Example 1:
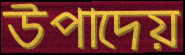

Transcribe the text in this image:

উপাদেয়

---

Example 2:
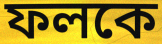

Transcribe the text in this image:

ফলকে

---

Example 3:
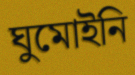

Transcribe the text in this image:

ঘুমোইনি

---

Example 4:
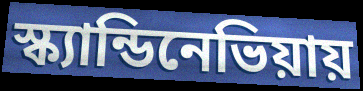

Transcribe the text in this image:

স্ক্যান্ডিনেভিয়ায়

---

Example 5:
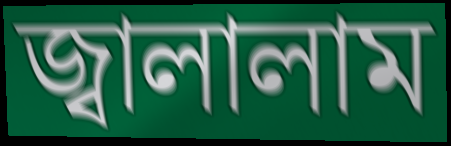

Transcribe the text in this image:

জ্বালালাম